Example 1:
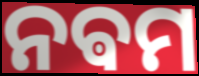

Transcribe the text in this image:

ନଵମ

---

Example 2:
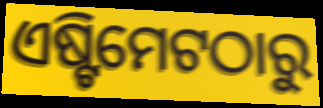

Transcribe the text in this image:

ଏଷ୍ଟିମେଟଠାରୁ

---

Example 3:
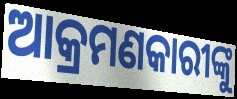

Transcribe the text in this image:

ଆକ୍ରମଣକାରୀଙ୍କୁ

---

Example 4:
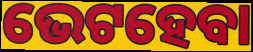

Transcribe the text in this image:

ଭେଟହେବା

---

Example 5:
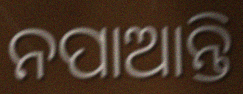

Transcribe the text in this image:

ନପାଆନ୍ତି